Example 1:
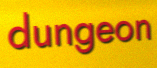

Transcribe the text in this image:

dungeon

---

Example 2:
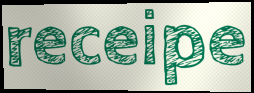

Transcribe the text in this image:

receipe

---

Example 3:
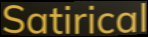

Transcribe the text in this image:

Satirical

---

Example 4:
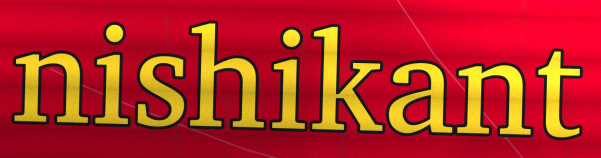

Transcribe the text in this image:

nishikant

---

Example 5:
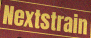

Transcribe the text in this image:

Nextstrain